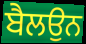
ਬੈਲਉਨ